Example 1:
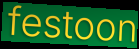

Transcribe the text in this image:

festoon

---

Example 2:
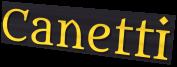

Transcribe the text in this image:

Canetti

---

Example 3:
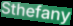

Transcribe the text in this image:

Sthefany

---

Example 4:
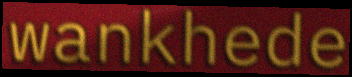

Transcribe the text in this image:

wankhede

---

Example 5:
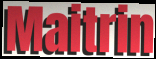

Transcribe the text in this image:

Maitrin